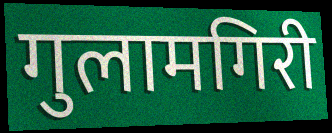
गुलामगिरी